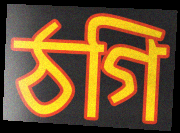
ঠগি